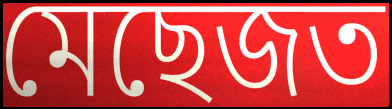
মেছেজত